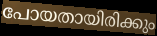
പോയതായിരിക്കും